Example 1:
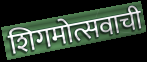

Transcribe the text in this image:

शिगमोत्सवाची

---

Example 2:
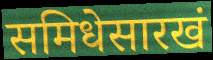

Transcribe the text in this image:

समिधेसारखं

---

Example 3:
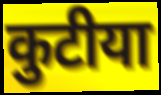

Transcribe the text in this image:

कुटीया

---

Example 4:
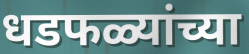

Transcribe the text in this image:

धडफळ्यांच्या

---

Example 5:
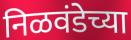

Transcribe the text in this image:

निळवंडेच्या